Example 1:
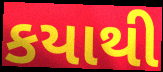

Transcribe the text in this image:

કયાથી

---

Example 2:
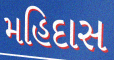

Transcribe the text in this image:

મહિદાસ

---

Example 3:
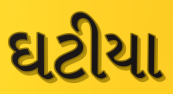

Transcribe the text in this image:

ઘટીયા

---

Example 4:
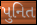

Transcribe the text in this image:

પુનિત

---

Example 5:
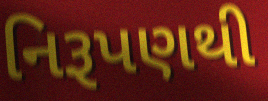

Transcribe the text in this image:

નિરૂપણથી